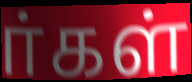
ர்கள்